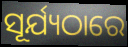
ସୂର୍ଯ୍ୟଠାରେ